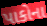
પાકોના